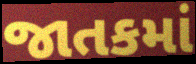
જાતકમાં